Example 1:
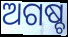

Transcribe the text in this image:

ଅଗଷ୍ଚ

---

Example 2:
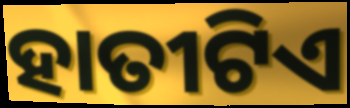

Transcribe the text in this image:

ହାତୀଟିଏ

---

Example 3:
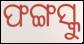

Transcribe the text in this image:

ଫଙ୍ଗସ୍କୁ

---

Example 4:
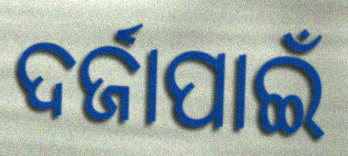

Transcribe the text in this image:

ଦର୍ଜାପାଇଁ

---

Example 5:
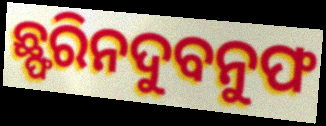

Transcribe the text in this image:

ଛ୍ଫରିନଦୁବନୁଫ